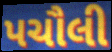
પચૌલી